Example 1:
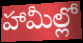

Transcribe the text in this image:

హామీల్లో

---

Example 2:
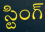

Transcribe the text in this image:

స్టింగ్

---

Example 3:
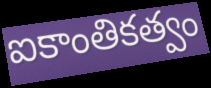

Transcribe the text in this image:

ఐకాంతికత్వం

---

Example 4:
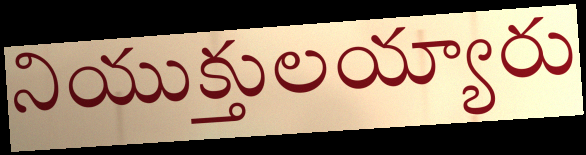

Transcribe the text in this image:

నియుక్తులయ్యారు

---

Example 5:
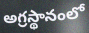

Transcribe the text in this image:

అగ్రస్థానంలో